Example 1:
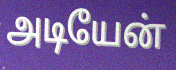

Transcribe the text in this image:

அடியேன்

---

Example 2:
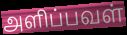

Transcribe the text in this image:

அளிப்பவள்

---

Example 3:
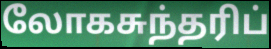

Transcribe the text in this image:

லோகசுந்தரிப்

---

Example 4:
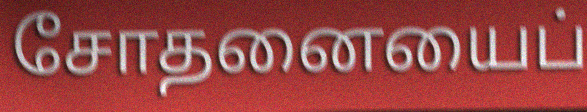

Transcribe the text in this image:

சோதனையைப்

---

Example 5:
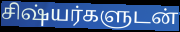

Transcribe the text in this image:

சிஷ்யர்களுடன்